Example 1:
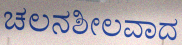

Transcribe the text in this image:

ಚಲನಶೀಲವಾದ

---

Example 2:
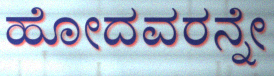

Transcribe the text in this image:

ಹೋದವರನ್ನೇ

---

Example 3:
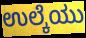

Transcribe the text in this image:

ಉಲ್ಕೆಯು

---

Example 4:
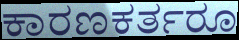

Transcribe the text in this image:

ಕಾರಣಕರ್ತರೂ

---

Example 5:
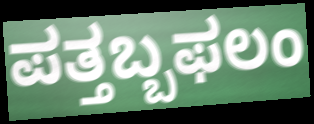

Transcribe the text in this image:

ಪತ್ತಬ್ಬಫಲಂ